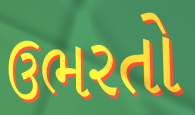
ઉભરતો